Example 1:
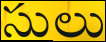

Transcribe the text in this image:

సులు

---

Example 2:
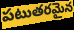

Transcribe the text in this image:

పటుతరమైన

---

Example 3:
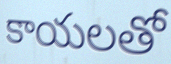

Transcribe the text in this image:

కాయలతో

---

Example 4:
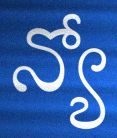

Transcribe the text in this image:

న్యో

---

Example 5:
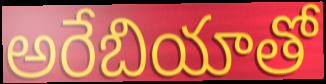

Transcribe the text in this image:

అరేబియాతో